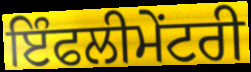
ਇੰਫਲੀਮੇਂਟਰੀ